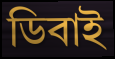
ডিবাই